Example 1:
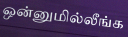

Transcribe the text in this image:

ஒன்னுமில்லீங்க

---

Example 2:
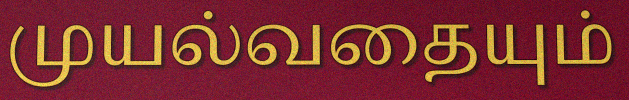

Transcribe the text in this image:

முயல்வதையும்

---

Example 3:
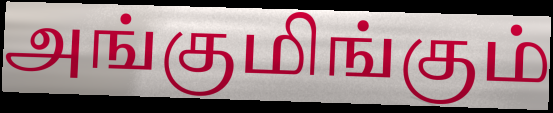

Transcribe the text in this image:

அங்குமிங்கும்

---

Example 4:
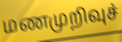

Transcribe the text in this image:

மணமுறிவுச்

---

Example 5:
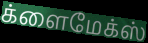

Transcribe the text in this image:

க்ளைமேக்ஸ்